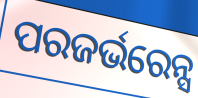
ପରଜର୍ଭରେନ୍ସ